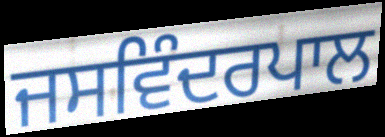
ਜਸਵਿੰਦਰਪਾਲ